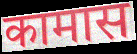
कामास